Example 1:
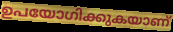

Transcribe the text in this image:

ഉപയോഗിക്കുകയാണ്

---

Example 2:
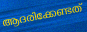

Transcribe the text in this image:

ആദരിക്കേണ്ടത്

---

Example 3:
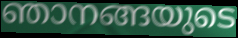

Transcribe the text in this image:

ഞാനങ്ങയുടെ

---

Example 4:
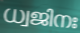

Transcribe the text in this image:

ധ്വജിനഃ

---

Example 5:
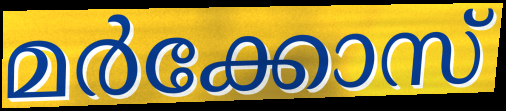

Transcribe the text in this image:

മർക്കോസ്